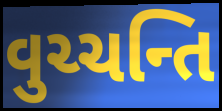
વુચ્ચન્તિ